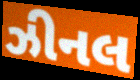
ઝીનલ